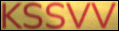
KSSVV